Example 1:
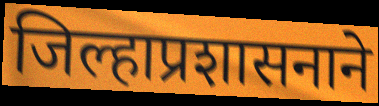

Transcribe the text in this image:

जिल्हाप्रशासनाने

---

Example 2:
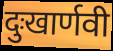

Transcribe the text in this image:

दुःखार्णवी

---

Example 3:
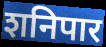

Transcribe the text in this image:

शनिपार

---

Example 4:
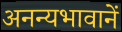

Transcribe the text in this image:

अनन्यभावानें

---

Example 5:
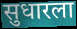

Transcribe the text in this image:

सुधारला